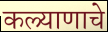
कल्याणाचे